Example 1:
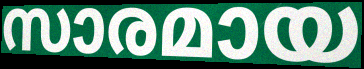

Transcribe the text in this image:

സാരമായ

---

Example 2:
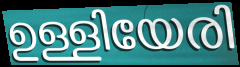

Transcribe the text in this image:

ഉള്ളിയേരി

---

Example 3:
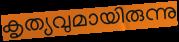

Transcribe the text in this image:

കൃത്യവുമായിരുന്നു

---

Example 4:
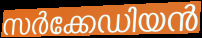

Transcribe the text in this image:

സർക്കേഡിയൻ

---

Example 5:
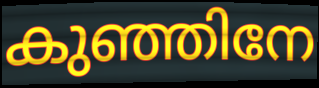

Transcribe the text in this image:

കുഞ്ഞിനേ